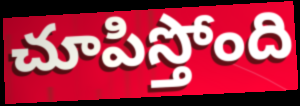
చూపిస్తోంది